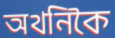
অথনিকৈ